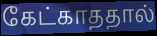
கேட்காததால்